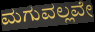
ಮಗುವಲ್ಲವೇ